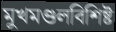
মুখমণ্ডলবিশিষ্ট